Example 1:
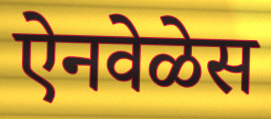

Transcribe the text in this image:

ऐनवेळेस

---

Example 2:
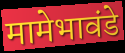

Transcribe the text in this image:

मामेभावंडे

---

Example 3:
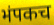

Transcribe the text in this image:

भंपकच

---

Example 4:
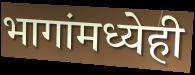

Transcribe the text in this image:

भागांमध्येही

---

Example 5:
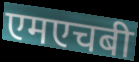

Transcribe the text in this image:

एमएचबी